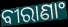
ବୀରାଣାଂ